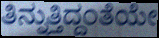
ತಿನ್ನುತ್ತಿದ್ದಂತೆಯೇ